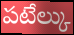
పటేల్కు